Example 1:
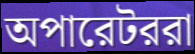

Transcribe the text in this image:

অপারেটররা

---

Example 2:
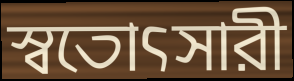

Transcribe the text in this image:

স্বতোৎসারী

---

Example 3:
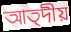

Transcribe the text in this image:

আত্দীয়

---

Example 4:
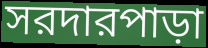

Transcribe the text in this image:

সরদারপাড়া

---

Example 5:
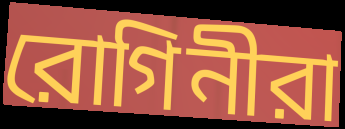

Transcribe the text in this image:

রোগিনীরা